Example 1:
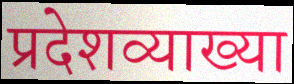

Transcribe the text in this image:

प्रदेशव्याख्या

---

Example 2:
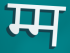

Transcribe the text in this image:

म्म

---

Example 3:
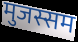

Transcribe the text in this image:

मुजस्सम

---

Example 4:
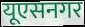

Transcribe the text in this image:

यूएसनगर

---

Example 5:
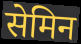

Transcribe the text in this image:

सेमिन